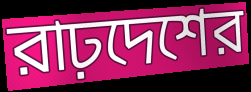
রাঢ়দেশের